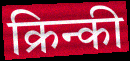
क्रिन्की